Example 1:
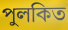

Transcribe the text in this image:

পুলকিত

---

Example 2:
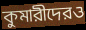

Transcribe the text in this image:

কুমারীদেরও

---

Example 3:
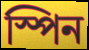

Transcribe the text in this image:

স্পিন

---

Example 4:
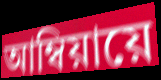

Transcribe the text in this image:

আম্বিয়ায়ে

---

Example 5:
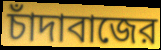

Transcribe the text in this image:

চাঁদাবাজের